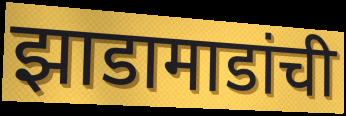
झाडामाडांची